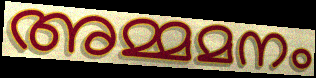
അമ്മമനം